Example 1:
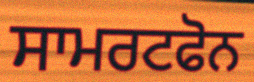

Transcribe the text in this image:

ਸਾਮਰਟਫੋਨ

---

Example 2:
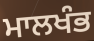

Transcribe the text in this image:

ਮਾਲਖੰਭ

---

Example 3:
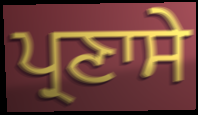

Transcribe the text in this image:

ਪ੍ਰਣਾਸੇ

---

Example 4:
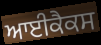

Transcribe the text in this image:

ਆਈਕੈਕਸ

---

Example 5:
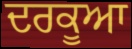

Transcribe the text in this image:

ਦਰਕੂਆ